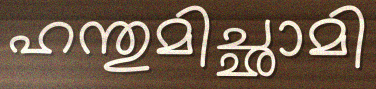
ഹന്തുമിച്ഛാമി